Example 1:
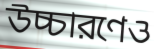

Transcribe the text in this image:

উচ্চারণেও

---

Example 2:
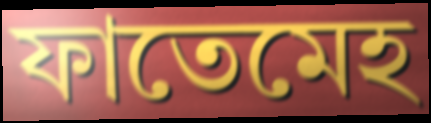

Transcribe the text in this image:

ফাতেমেহ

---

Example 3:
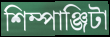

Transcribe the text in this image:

শিম্পাঞ্জিটা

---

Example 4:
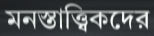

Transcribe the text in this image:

মনস্তাত্ত্বিকদের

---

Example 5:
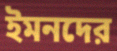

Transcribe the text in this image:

ইমনদের